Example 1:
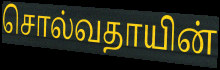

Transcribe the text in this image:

சொல்வதாயின்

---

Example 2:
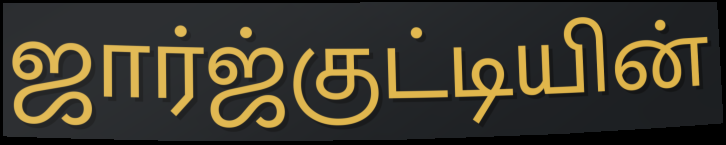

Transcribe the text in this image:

ஜார்ஜ்குட்டியின்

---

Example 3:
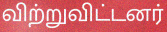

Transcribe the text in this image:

விற்றுவிட்டனர்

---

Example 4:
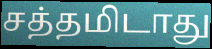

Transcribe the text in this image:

சத்தமிடாது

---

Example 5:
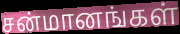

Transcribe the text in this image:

சன்மானங்கள்